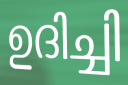
ഉദിച്ചി